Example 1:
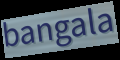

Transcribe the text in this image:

bangala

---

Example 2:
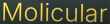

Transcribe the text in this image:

Molicular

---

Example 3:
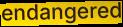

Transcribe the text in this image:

endangered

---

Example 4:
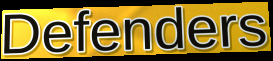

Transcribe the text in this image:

Defenders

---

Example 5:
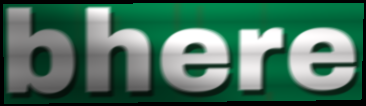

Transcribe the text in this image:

bhere